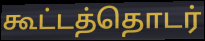
கூட்டத்தொடர்